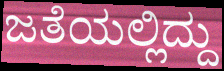
ಜತೆಯಲ್ಲಿದ್ದು